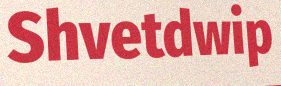
Shvetdwip